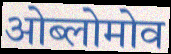
ओब्लोमोव